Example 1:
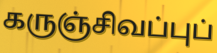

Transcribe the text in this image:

கருஞ்சிவப்புப்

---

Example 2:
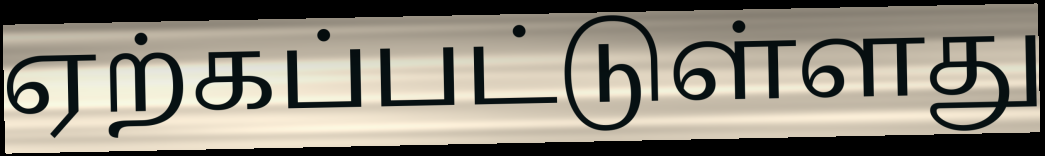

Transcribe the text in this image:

ஏற்கப்பட்டுள்ளது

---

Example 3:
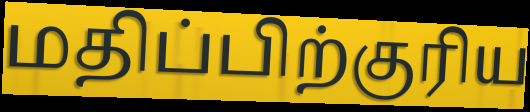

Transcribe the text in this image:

மதிப்பிற்குரிய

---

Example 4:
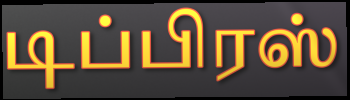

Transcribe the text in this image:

டிப்பிரஸ்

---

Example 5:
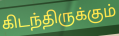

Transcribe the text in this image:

கிடந்திருக்கும்